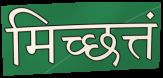
मिच्छत्तं